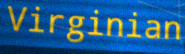
Virginian